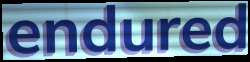
endured